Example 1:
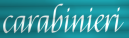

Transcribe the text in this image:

carabinieri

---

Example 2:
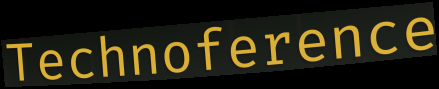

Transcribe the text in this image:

Technoference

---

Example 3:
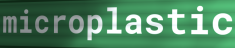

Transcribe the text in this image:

microplastic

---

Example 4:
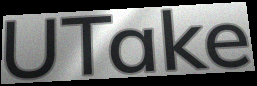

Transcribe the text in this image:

UTake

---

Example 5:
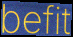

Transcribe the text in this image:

befit